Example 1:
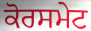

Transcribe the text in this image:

ਕੋਰਸਮੇਟ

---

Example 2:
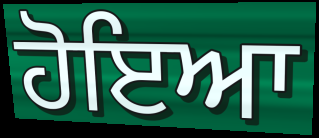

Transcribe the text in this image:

ਹੋਇਆ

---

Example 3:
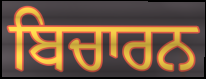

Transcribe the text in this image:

ਬਿਚਾਰਨ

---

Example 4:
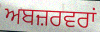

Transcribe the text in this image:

ਅਬਜ਼ਰਵਰਾਂ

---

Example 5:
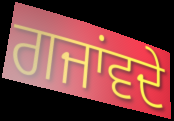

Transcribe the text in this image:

ਗਜਾਂਵਦੇ